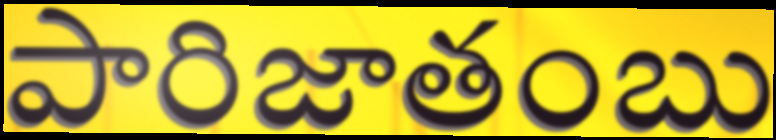
పారిజాతంబు